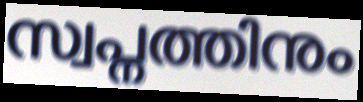
സ്വപ്നത്തിനും